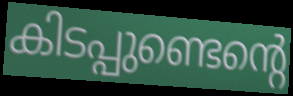
കിടപ്പുണ്ടെന്റെ